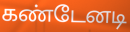
கண்டேனடி